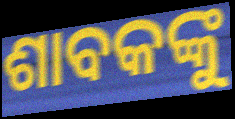
ଶାବକଙ୍କୁ